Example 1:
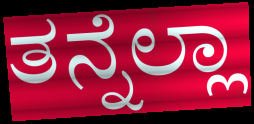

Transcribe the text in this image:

ತನ್ನೆಲ್ಲಾ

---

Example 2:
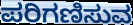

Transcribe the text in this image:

ಪರಿಗಣಿಸುವ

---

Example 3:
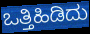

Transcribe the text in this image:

ಒತ್ತಿಹಿಡಿದು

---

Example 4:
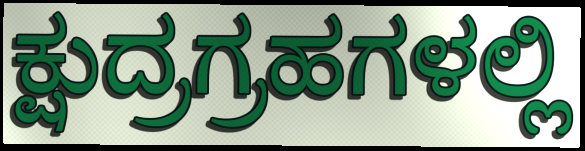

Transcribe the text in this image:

ಕ್ಷುದ್ರಗ್ರಹಗಳಲ್ಲಿ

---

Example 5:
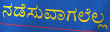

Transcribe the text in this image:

ನಡೆಸುವಾಗಲೆಲ್ಲ